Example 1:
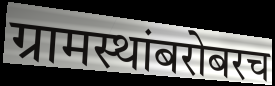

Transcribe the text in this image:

ग्रामस्थांबरोबरच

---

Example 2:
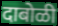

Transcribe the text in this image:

दाबोळी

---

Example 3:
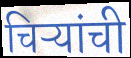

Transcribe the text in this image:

चिऱ्यांची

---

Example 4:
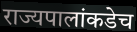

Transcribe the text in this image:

राज्यपालांकडेच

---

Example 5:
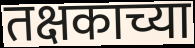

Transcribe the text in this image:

तक्षकाच्या